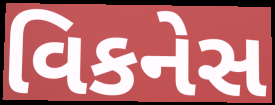
વિકનેસ